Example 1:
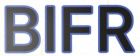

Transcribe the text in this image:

BIFR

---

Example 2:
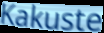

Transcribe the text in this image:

Kakuste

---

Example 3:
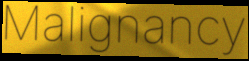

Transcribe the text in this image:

Malignancy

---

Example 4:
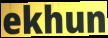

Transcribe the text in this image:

ekhun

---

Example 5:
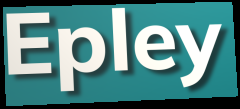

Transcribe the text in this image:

Epley